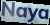
Naya